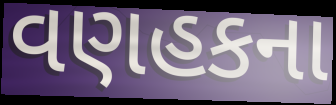
વણહકના